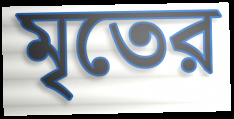
মৃতের